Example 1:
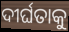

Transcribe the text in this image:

ଦୀର୍ଘତାକୁ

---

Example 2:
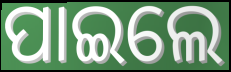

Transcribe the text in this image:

ପାଇଲେ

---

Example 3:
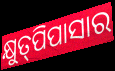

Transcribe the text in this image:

କ୍ଷୁତ୍‌ପିପାସାର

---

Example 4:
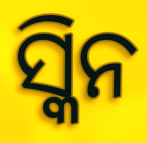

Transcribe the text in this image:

ସ୍କିନ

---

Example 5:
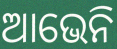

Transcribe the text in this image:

ଆଭେନି